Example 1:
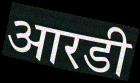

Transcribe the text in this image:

आरडी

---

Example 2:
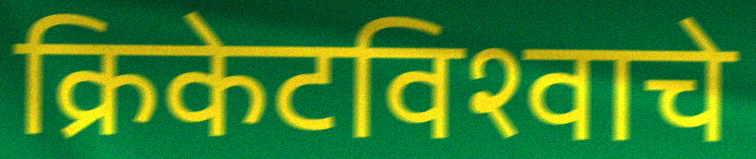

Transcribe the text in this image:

क्रिकेटविश्वाचे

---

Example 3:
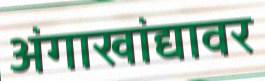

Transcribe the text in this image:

अंगाखांद्यावर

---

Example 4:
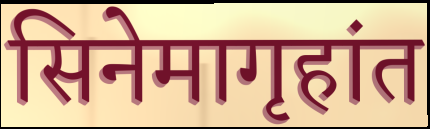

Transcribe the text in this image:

सिनेमागृहांत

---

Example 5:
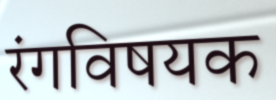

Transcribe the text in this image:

रंगविषयक